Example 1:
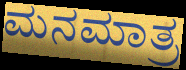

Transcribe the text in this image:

ಮನಮಾತ್ರ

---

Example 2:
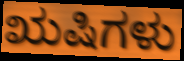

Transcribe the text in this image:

ಋಷಿಗಳು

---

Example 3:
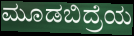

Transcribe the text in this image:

ಮೂಡಬಿದ್ರೆಯ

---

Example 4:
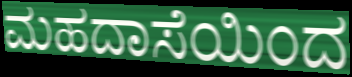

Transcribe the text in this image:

ಮಹದಾಸೆಯಿಂದ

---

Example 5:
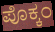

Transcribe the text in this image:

ಪೊಕ್ಕಂ